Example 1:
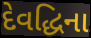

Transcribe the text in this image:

દેવદ્ધિના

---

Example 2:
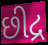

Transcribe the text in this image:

છીદ્ર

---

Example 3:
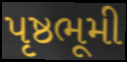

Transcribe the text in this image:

પૃષ્ઠભૂમી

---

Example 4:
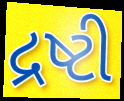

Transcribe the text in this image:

દ્રષ્ટી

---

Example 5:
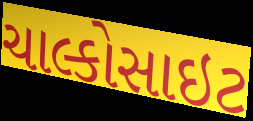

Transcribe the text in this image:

ચાલ્કોસાઇટ